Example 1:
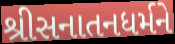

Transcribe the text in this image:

શ્રીસનાતનધર્મને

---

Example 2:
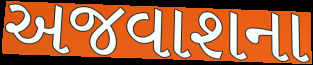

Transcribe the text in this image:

અજવાશના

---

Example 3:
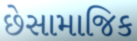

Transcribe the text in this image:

છેસામાજિક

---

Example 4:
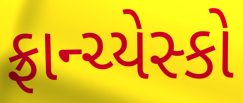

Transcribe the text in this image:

ફ્રાન્ચ્યેસ્કો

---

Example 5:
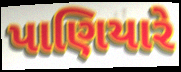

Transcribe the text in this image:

પાણિયારે